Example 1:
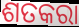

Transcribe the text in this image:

ଶତକରା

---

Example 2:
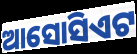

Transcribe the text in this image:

ଆସୋସିଏଟ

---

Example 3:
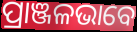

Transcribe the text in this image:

ପ୍ରାଞ୍ଜଳଭାବେ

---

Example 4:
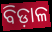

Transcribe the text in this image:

ବିଡ଼ାଳ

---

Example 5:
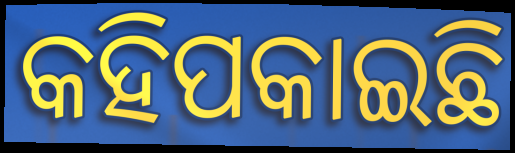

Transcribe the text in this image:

କହିପକାଇଛି